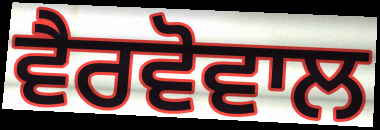
ਵੈਰਵੋਵਾਲ